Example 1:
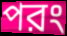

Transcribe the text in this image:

পরং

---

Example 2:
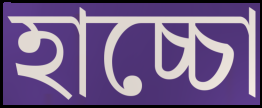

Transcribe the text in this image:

হাচ্চো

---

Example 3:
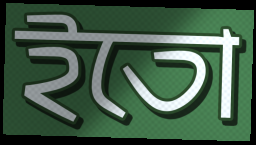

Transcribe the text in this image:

ইতো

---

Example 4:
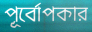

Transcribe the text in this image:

পূর্বোপকার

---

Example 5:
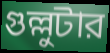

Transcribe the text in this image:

গুল্লুটার